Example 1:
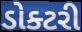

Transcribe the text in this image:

ડોક્ટરી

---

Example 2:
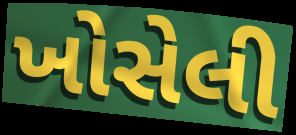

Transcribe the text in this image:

ખોસેલી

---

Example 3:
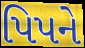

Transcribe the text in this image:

પિપને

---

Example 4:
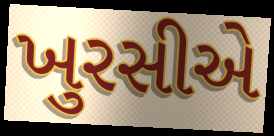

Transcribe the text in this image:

ખુરસીએ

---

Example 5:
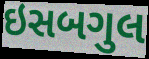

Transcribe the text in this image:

ઇસબગુલ